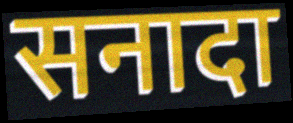
सनादा